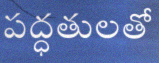
పద్ధతులతో